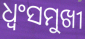
ଧ୍ୱଂସମୁଖୀ